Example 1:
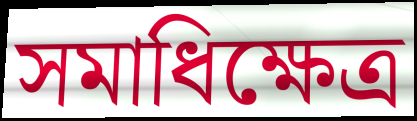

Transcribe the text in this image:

সমাধিক্ষেত্ৰ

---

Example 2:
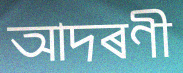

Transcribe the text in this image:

আদৰণী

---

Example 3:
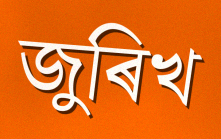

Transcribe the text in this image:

জুৰিখ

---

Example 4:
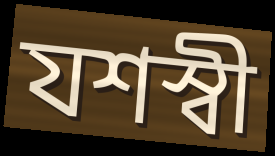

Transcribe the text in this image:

যশস্বী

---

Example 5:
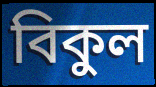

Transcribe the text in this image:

বিকুল